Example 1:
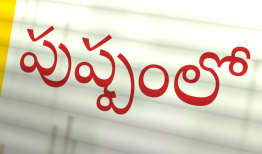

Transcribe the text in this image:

పుష్పంలో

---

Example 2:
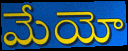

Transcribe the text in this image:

మేయో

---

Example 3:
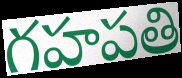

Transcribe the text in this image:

గహపతి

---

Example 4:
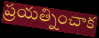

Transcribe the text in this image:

ప్రయత్నించాక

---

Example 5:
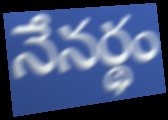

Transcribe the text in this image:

నేనర్థం